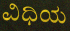
ವಿಧಿಯ